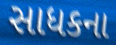
સાધકના